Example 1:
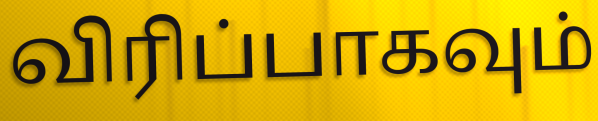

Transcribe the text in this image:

விரிப்பாகவும்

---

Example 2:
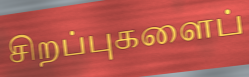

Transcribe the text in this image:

சிறப்புகளைப்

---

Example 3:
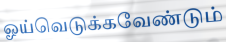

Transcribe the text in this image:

ஓய்வெடுக்கவேண்டும்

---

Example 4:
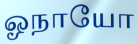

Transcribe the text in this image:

ஓநாயோ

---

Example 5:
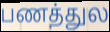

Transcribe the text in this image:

பணத்துல